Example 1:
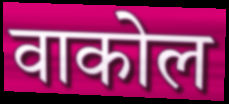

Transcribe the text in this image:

वाकोल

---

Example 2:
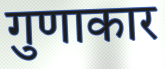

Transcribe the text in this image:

गुणाकार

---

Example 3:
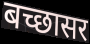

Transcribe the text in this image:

बच्छासर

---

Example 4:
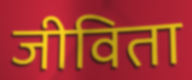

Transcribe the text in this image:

जीविता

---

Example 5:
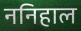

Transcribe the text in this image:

ननिहाल